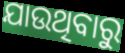
ଯାଉଥିବାରୁ